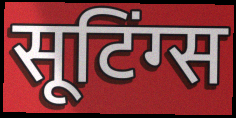
सूटिंग्स